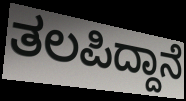
ತಲಪಿದ್ದಾನೆ